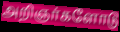
அறிஞர்களோடு